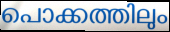
പൊക്കത്തിലും